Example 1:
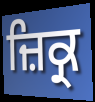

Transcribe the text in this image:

ਜ਼ਿਕ੍ਰ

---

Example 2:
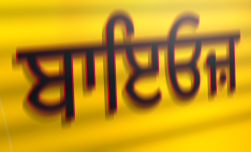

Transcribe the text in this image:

ਬਾਇਓਜ਼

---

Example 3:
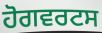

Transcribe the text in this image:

ਹੋਗਵਰਟਸ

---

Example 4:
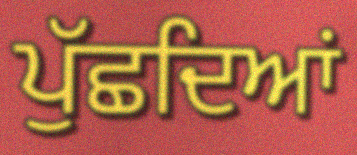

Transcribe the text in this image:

ਪੁੱਛਦਿਆਂ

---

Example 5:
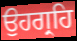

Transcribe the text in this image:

ਉਹਗ੍ਰਹਿ